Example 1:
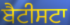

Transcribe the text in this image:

ਬੈਟੀਸਟਾ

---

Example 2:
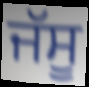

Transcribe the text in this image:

ਜੱਸੂ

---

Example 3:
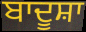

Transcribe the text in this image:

ਬਾਦੂਸ਼ਾ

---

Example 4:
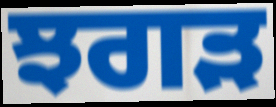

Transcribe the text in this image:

ਝਗੜ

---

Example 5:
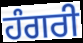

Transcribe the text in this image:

ਹੰਗਰੀ